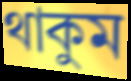
থাকুম